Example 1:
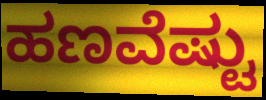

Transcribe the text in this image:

ಹಣವೆಷ್ಟು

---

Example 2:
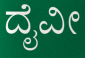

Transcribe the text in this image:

ದೈವೀ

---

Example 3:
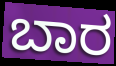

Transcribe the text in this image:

ಬಾರ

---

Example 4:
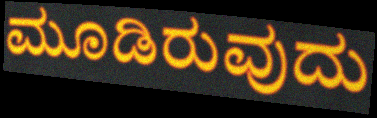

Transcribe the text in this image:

ಮೂಡಿರುವುದು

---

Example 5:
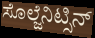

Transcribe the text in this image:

ಸೊಲ್ಜೆನಿಟ್ಸಿನ್